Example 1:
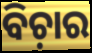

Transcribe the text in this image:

ବିଚ଼ାର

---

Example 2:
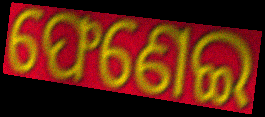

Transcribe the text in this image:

ଫେଣେଇ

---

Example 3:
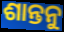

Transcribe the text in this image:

ଶାନ୍ତନୁ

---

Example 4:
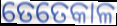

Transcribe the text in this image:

ତେତେକାଳ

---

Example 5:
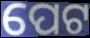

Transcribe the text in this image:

ପେଟ